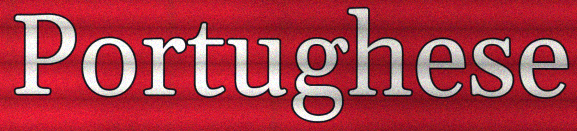
Portughese